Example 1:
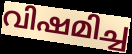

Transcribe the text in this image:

വിഷമിച്ച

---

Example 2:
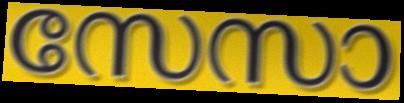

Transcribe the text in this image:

സേസാ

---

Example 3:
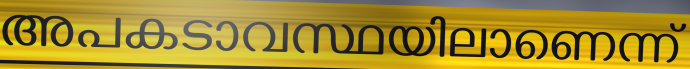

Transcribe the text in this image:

അപകടാവസ്ഥയിലാണെന്ന്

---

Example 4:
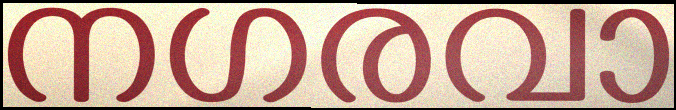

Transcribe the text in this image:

നഗരവാ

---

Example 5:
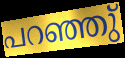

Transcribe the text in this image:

പറഞ്ഞു്